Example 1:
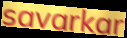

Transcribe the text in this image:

savarkar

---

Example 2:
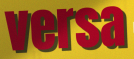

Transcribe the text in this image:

versa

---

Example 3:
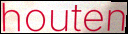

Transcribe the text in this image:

houten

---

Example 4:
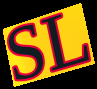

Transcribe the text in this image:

SL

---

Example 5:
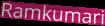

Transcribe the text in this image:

Ramkumari